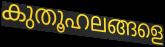
കുതൂഹലങ്ങളെ